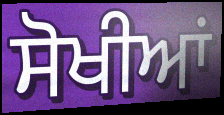
ਸੋਖੀਆਂ